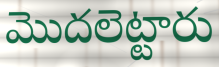
మొదలెట్టారు